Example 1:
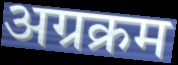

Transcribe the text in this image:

अग्रक्रम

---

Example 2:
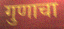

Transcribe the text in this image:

गुणाचा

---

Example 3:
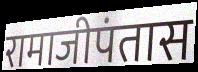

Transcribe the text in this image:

रामाजीपंतास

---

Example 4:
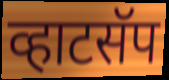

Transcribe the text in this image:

व्हाटसॅप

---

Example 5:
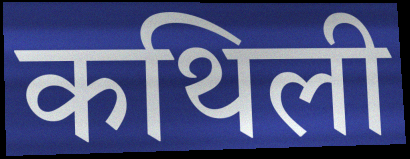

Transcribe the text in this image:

कथिली